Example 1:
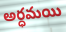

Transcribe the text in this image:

అర్ధమయి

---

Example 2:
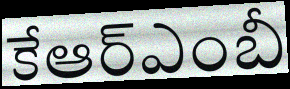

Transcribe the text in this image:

కేఆర్ఎంబీ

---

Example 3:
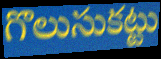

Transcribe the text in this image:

గొలుసుకట్టు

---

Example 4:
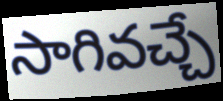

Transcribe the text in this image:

సాగివచ్చే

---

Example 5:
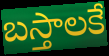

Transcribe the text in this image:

బస్తాలకే